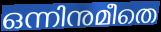
ഒന്നിനുമീതെ